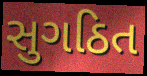
સુગઠિત